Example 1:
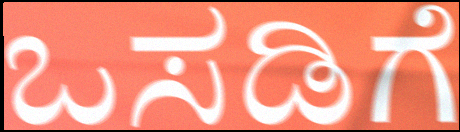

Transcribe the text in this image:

ಒಸಡಿಗೆ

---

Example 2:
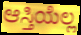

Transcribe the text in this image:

ಆಸ್ತಿಯೆಲ್ಲ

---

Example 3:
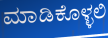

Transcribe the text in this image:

ಮಾಡಿಕೊಳ್ಳಲಿ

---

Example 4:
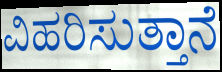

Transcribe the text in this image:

ವಿಹರಿಸುತ್ತಾನೆ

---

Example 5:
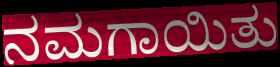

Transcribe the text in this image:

ನಮಗಾಯಿತು